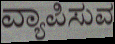
ವ್ಯಾಪಿಸುವ